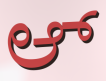
ಆ್